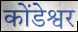
कोंडेश्वर